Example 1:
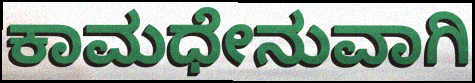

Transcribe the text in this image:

ಕಾಮಧೇನುವಾಗಿ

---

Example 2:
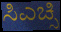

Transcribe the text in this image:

ಸಿಎಚ್ಸಿ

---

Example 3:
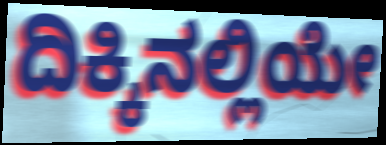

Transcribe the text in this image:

ದಿಕ್ಕಿನಲ್ಲಿಯೇ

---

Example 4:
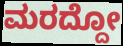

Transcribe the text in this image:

ಮರದ್ದೋ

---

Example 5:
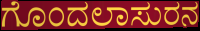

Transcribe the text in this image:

ಗೊಂದಲಾಸುರನ